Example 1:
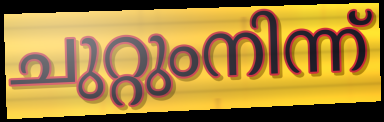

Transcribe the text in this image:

ചുറ്റുംനിന്ന്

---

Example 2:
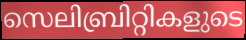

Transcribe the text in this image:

സെലിബ്രിറ്റികളുടെ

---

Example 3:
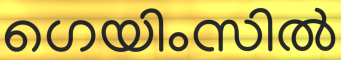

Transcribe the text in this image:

ഗെയിംസിൽ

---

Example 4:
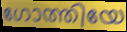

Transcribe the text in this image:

ഗോത്തിയേ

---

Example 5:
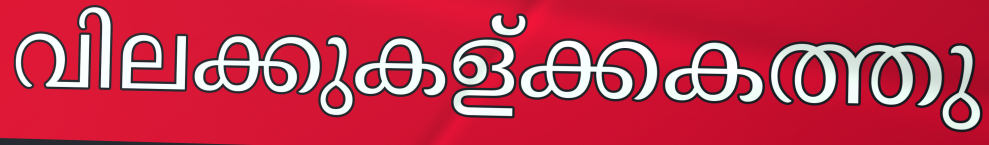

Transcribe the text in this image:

വിലക്കുകള്ക്കകത്തു